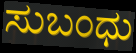
ಸುಬಂಧು